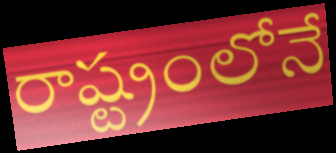
రాష్ట్రంలోనే